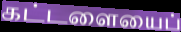
கட்டளையைப்